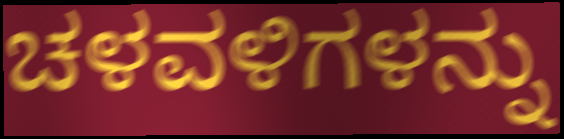
ಚಳವಳಿಗಳನ್ನು